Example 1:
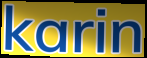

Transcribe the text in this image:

karin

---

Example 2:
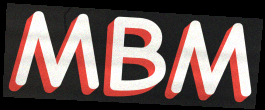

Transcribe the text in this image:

MBM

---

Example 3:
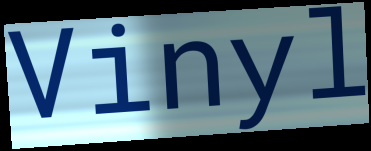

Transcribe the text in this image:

Vinyl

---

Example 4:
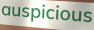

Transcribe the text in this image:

auspicious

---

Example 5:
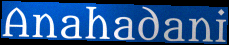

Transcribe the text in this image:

Anahadani